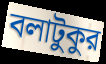
বলাটুকুর